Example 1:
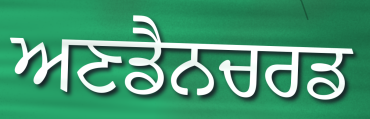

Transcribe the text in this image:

ਅਣਡੈਨਚਰਡ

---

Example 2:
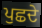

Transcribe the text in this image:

ਪੁਛਦੇ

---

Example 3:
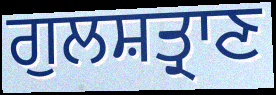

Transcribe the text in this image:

ਗੁਲਸ਼ਤ੍ਰਾਣ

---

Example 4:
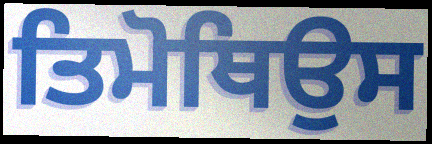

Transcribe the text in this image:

ਤਿਮੋਥਿਉਸ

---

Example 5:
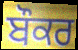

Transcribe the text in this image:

ਬੌਕਰ